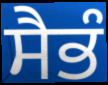
ਸੈਭੰ